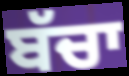
ਬੱਚਾ